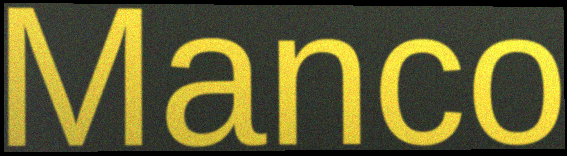
Manco